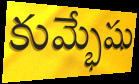
కుమ్భేషు